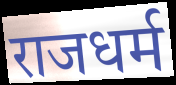
राजधर्म